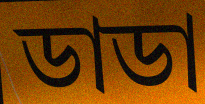
ডাডা